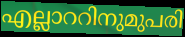
എല്ലാററിനുമുപരി